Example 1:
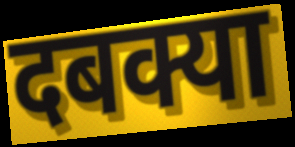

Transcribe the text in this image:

दबक्या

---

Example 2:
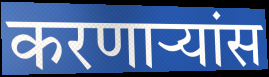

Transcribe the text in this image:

करणाऱ्यांस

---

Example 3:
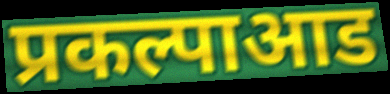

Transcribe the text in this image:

प्रकल्पाआड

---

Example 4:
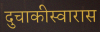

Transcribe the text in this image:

दुचाकीस्वारास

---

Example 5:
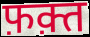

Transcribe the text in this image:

फ़क़्त